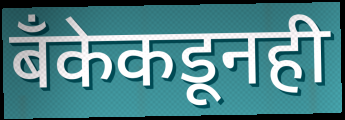
बँकेकडूनही